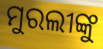
ମୁରଲୀଙ୍କୁ